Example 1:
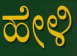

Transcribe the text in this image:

ಹೇಳಿ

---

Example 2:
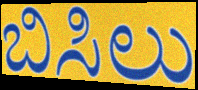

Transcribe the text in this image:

ಬಿಸಿಲು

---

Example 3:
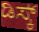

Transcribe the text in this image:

ಡಿಸ್ಕ್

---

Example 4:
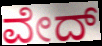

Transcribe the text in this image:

ವೇದ್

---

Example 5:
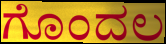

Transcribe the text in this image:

ಗೊಂದಲ